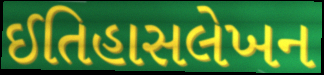
ઈતિહાસલેખન